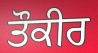
ਤੌਕੀਰ